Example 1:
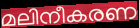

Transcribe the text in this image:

മലിനീകരണ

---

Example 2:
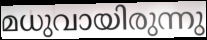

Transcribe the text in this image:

മധുവായിരുന്നു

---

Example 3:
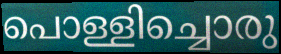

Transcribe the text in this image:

പൊള്ളിച്ചൊരു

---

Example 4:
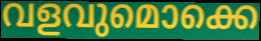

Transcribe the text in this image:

വളവുമൊക്കെ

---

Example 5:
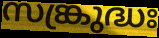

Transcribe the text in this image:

സങ്ക്രുദ്ധഃ